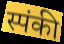
स्पंकी